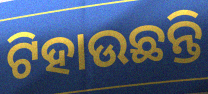
ଟିହାଉଛନ୍ତି